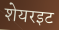
शेयरइट